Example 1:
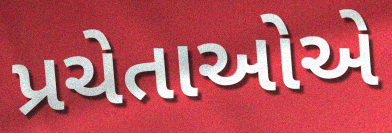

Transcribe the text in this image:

પ્રચેતાઓએ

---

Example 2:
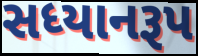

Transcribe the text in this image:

સધ્યાનરૂપ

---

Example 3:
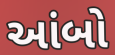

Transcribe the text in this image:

આંબો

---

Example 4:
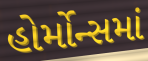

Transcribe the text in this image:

હોર્મોન્સમાં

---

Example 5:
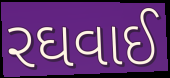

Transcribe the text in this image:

રઘવાઈ